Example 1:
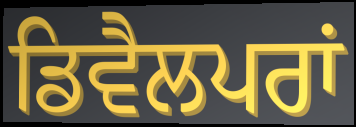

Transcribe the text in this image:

ਡਿਵੈਲਪਰਾਂ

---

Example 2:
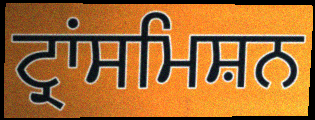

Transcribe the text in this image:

ਟ੍ਰਾਂਸਮਿਸ਼ਨ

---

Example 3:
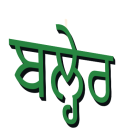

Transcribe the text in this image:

ਬਲ੍ਹੇਰ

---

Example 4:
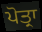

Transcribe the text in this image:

ਪੋਤ੍ਰਾ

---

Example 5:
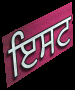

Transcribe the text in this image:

ਇਸਟ